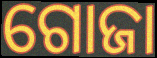
ଗୋଜା